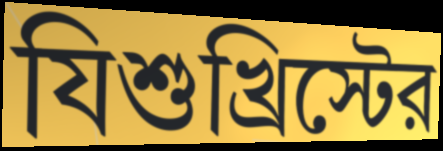
যিশুখ্রিস্টের